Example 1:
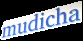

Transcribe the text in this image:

mudicha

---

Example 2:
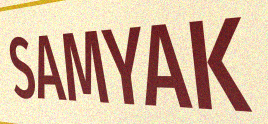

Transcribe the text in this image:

SAMYAK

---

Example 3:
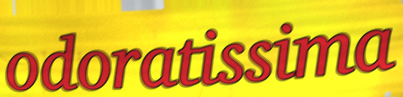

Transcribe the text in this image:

odoratissima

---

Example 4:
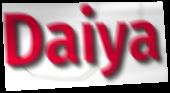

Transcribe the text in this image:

Daiya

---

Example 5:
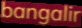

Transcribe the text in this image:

bangalir